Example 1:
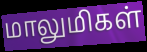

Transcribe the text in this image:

மாலுமிகள்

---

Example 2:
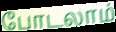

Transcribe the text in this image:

போடலாம்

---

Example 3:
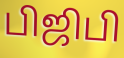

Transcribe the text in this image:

பிஜிபி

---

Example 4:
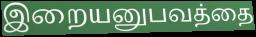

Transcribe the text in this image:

இறையனுபவத்தை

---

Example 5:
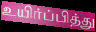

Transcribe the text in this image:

உயிர்ப்பித்து